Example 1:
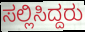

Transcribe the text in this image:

ಸಲ್ಲಿಸಿದ್ದರು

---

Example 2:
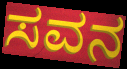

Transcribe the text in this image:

ಸವನ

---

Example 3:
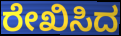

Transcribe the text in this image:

ರೇಖಿಸಿದ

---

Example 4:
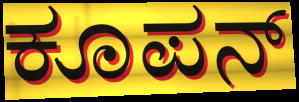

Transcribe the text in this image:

ಕೂಪನ್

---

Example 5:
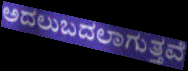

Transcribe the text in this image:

ಅದಲುಬದಲಾಗುತ್ತವೆ